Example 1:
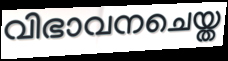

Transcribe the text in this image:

വിഭാവനചെയ്ത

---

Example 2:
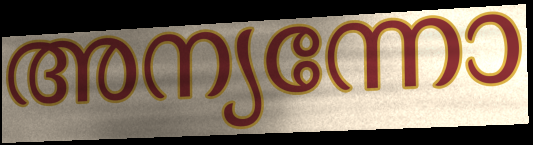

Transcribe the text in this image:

അന്യന്നോ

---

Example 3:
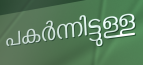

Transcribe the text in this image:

പകർന്നിട്ടുള്ള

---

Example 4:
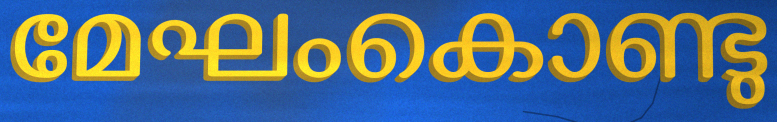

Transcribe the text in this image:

മേഘംകൊണ്ടു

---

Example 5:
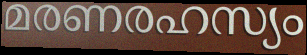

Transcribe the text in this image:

മരണരഹസ്യം